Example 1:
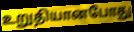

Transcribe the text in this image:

உறுதியானபோது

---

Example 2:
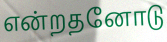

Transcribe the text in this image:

என்றதனோடு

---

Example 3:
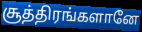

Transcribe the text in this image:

சூத்திரங்களானே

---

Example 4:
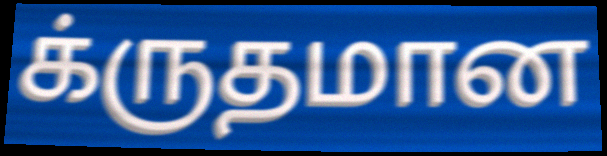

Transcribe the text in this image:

க்ருதமான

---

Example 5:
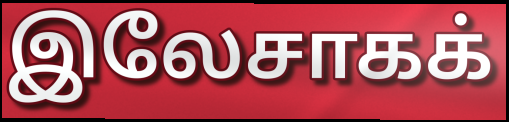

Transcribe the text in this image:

இலேசாகக்